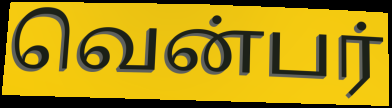
வென்பர்